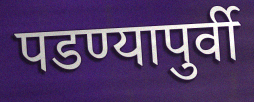
पडण्यापुर्वी